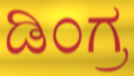
ಡಿಂಗ್ರ